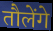
तौलेंगे